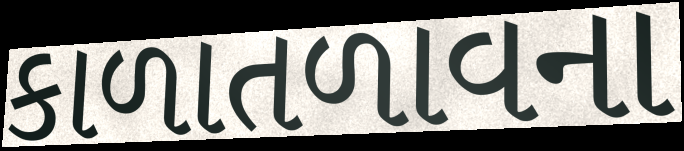
કાળાતળાવના